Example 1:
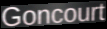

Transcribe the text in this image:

Goncourt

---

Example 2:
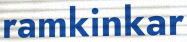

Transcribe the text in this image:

ramkinkar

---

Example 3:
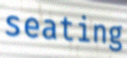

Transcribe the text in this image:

seating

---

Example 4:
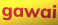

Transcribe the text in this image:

gawai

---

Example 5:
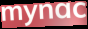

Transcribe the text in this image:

mynac